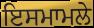
ਇਸਮਾਮਲੇ